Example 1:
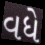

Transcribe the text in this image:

વધે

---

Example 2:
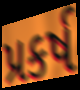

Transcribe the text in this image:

પ્રકર્ષ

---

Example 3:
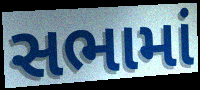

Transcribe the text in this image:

સભામાં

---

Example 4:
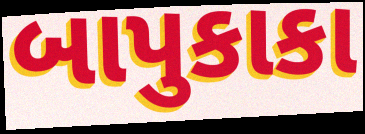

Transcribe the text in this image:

બાપુકાકા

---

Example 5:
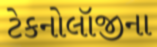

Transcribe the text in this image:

ટેકનોલૉજીના